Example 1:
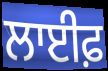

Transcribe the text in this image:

ਲਾਈਫ਼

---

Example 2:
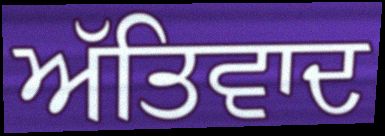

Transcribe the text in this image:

ਅੱਤਿਵਾਦ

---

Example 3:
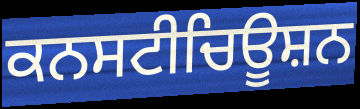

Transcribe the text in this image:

ਕਨਸਟੀਚਿਊਸ਼ਨ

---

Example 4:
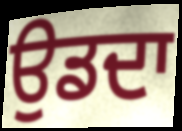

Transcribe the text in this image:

ਉਡਦਾ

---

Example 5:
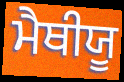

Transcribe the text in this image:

ਮੈਥੀਯੂ